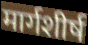
मार्गशीर्ष